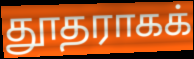
தூதராகக்